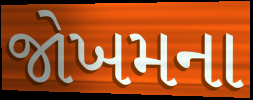
જોખમના